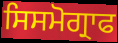
ਸਿਸਮੋਗ੍ਰਾਫ